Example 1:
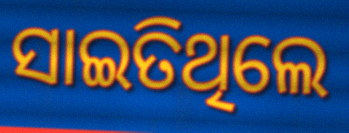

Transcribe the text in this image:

ସାଇତିଥିଲେ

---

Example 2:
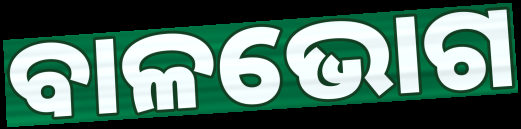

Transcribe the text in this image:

ବାଳଭୋଗ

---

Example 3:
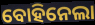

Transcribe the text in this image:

ବୋହିନେଲା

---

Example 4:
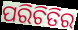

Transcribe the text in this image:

ପରିଚିତିର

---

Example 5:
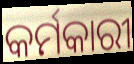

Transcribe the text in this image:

କର୍ମକାରୀ